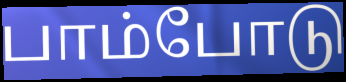
பாம்போடு